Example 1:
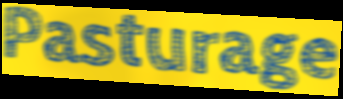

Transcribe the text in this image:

Pasturage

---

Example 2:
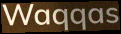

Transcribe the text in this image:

Waqqas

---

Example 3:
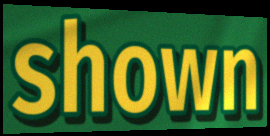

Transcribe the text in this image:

shown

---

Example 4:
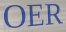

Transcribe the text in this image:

OER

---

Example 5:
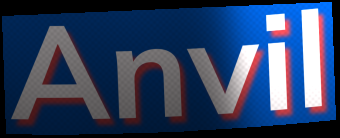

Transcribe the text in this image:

Anvil